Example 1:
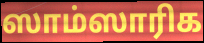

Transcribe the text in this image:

ஸாம்ஸாரிக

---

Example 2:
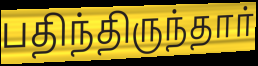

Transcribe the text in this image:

பதிந்திருந்தார்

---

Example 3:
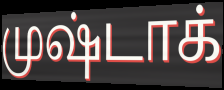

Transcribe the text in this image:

முஷ்டாக்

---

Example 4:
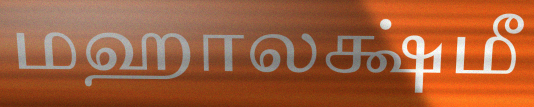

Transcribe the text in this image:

மஹாலக்ஷ்மீ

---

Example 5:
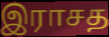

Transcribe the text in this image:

இராசத